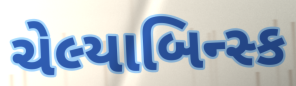
ચેલ્યાબિન્સ્ક